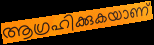
ആഗ്രഹിക്കുകയാണ്